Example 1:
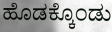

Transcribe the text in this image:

ಹೊಡಕ್ಕೊಂಡು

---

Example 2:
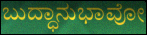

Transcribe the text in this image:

ಬುದ್ಧಾನುಭಾವೋ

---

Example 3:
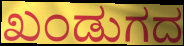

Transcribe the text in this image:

ಖಂಡುಗದ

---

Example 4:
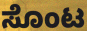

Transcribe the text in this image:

ಸೊಂಟ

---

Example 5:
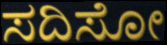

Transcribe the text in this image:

ಸದಿಸೋ